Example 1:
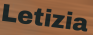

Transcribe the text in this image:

Letizia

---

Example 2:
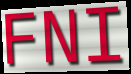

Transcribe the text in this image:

FNI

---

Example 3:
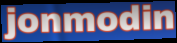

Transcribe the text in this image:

jonmodin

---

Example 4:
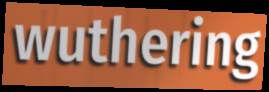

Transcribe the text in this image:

wuthering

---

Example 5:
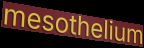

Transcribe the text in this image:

mesothelium